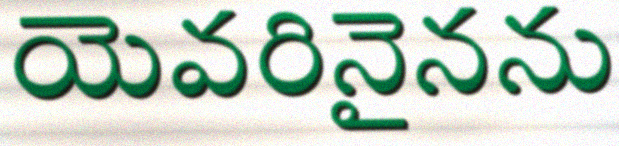
యెవరినైనను